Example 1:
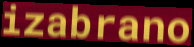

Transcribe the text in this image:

izabrano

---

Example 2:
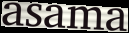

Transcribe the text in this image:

asama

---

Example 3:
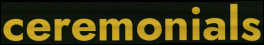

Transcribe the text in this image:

ceremonials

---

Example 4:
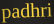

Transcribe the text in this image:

padhri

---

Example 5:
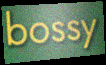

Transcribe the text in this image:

bossy